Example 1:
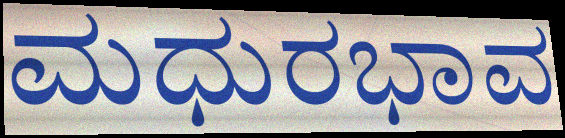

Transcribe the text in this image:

ಮಧುರಭಾವ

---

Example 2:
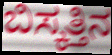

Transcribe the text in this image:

ಬಿಸ್ಕತ್ತಿನ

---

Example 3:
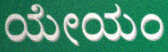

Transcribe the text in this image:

ಯೇಯಂ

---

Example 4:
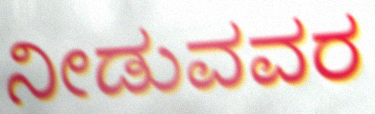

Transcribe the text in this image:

ನೀಡುವವರ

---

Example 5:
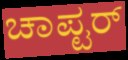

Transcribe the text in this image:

ಚಾಪ್ಟರ್